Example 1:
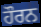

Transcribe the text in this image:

ਹੌਰਨ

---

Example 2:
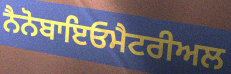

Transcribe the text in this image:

ਨੈਨੋਬਾਇਓਮੈਟਰੀਅਲ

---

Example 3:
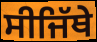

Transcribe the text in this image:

ਸੀਜਿੱਥੇ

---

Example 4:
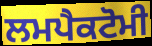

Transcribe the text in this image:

ਲਮਪੈਕਟੋਮੀ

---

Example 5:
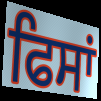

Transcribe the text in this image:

ਫਿਸਾਂ